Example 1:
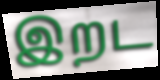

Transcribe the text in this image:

இறட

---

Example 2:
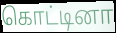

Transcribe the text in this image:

கொட்டினா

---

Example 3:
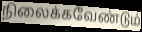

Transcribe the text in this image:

நிலைக்கவேண்டும்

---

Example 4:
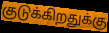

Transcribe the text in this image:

குடுக்கிறதுக்கு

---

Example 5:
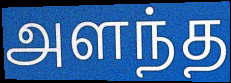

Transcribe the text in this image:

அளந்த